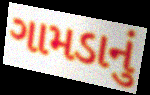
ગામડાનું